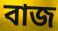
বাজ